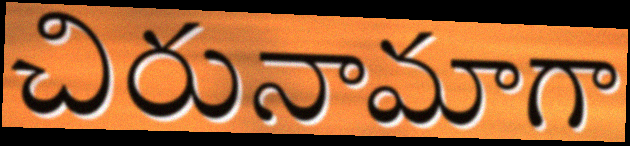
చిరునామాగా